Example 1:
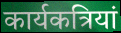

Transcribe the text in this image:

कार्यकत्रियां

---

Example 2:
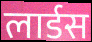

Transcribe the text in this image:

लार्डस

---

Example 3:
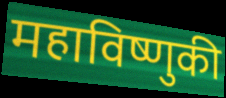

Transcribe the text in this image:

महाविष्णुकी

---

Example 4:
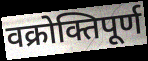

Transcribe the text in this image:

वक्रोक्तिपूर्ण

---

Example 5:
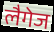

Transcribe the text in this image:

लैगेज